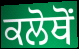
ਕਲੋਥੋਂ